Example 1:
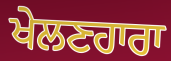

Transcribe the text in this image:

ਖੇਲਣਹਾਰਾ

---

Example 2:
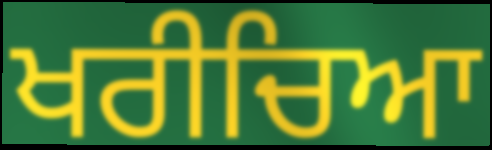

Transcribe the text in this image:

ਖਰੀਚਿਆ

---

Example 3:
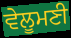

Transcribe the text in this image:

ਵੇਲੂਮਣੀ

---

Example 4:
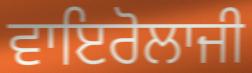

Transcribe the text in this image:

ਵਾਇਰੋਲਾਜੀ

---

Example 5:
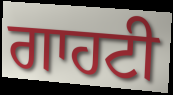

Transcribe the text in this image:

ਗਾਹਟੀ